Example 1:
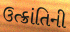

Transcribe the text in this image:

ઉત્ક્રાંતિની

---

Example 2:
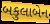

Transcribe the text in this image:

બકુલાબેન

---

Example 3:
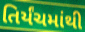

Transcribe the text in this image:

તિર્યંચમાંથી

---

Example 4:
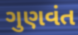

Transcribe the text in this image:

ગુણવંત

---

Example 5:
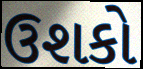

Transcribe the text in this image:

ઉશકો